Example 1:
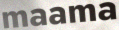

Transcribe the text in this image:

maama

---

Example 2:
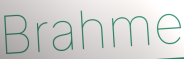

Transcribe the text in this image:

Brahme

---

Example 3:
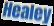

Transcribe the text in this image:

Healey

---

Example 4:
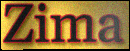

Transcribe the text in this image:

Zima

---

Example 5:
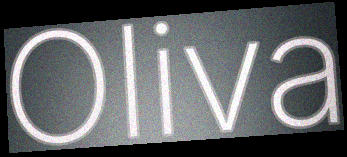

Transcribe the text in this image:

Oliva